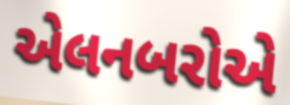
એલનબરોએ